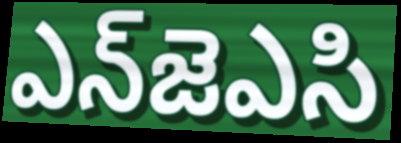
ఎన్‌జెఎసి